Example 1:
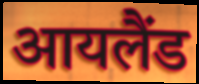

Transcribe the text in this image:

आयलैंड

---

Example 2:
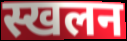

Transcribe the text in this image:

स्खलन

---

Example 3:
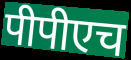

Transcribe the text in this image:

पीपीएच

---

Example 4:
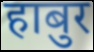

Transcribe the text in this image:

हाबुर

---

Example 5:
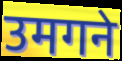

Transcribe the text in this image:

उमगने